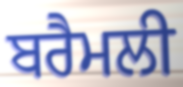
ਬਰੈਮਲੀ